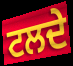
ਟਲਦੇ